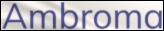
Ambroma